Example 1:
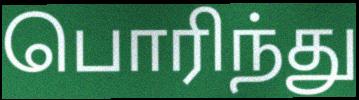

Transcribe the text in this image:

பொரிந்து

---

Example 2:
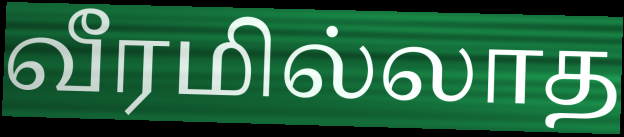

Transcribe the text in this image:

வீரமில்லாத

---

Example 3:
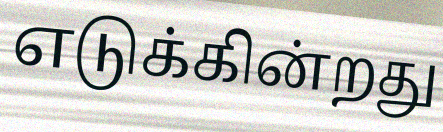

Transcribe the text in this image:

எடுக்கின்றது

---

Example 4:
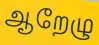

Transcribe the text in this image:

ஆறேழு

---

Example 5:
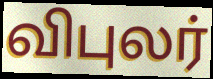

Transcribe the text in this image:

விபுலர்